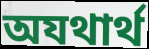
অযথার্থ